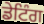
ਡੇਟਿੰਗ